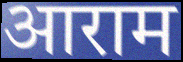
आराम